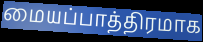
மையப்பாத்திரமாக